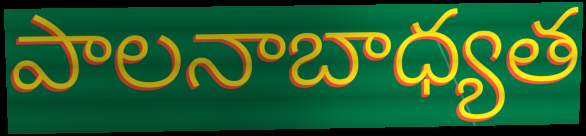
పాలనాబాధ్యత